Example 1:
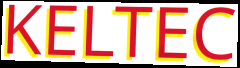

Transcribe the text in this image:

KELTEC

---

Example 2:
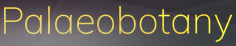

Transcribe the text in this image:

Palaeobotany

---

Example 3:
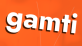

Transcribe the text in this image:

gamti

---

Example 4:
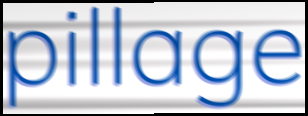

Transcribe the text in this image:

pillage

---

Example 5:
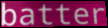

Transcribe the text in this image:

batter